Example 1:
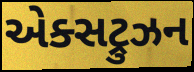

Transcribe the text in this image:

એક્સટ્રુઝન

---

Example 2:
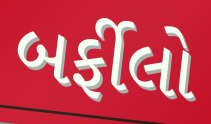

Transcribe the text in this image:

બર્ફીલો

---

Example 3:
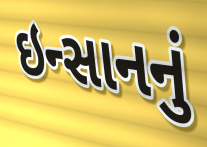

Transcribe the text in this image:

ઇન્સાનનું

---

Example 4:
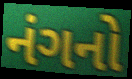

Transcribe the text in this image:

નંગનો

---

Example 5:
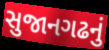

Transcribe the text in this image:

સુજાનગઢનું